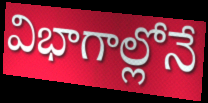
విభాగాల్లోనే